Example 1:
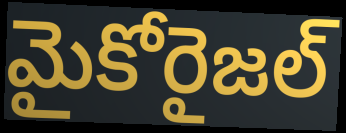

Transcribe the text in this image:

మైకోరైజల్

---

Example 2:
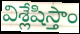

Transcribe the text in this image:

విశ్లేషిస్తాం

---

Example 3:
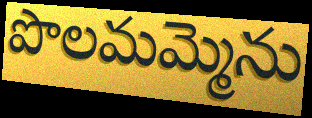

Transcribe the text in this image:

పొలమమ్మెను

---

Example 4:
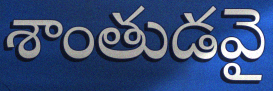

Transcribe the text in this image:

శాంతుడవై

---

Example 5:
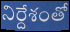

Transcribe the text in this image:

నిర్దేశంతో